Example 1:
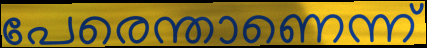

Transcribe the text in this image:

പേരെന്താണെന്ന്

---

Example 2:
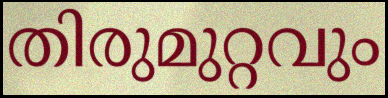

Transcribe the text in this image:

തിരുമുറ്റവും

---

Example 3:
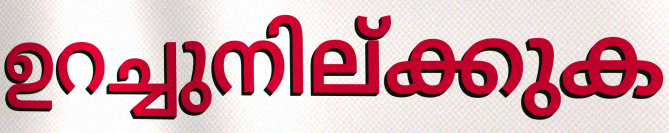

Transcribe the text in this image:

ഉറച്ചുനില്ക്കുക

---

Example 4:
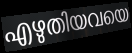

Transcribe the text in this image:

എഴുതിയവയെ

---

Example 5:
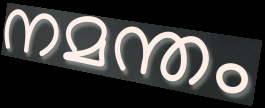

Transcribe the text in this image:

നമന്തം